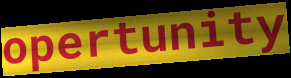
opertunity